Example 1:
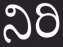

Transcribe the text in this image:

ನಿರಿ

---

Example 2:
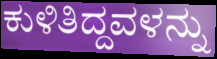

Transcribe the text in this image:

ಕುಳಿತಿದ್ದವಳನ್ನು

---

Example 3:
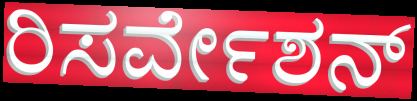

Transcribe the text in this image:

ರಿಸರ್ವೇಶನ್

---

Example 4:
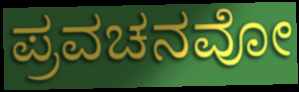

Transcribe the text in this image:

ಪ್ರವಚನವೋ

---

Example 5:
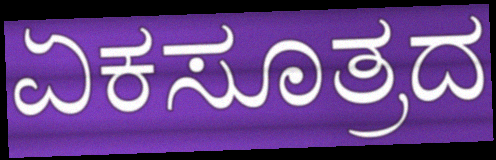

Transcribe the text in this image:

ಏಕಸೂತ್ರದ